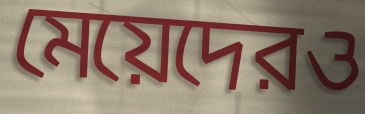
মেয়েদেরও